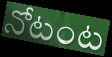
నోటంట